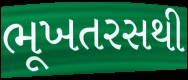
ભૂખતરસથી